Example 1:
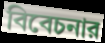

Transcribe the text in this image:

বিবেচনার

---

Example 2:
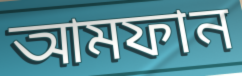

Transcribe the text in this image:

আমফান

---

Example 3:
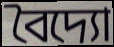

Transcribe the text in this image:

বৈদ্যো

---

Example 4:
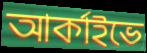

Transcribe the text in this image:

আর্কাইভে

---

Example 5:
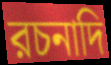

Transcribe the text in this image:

রচনাদি